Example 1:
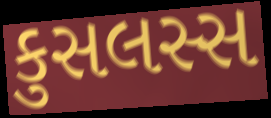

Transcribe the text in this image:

કુસલસ્સ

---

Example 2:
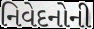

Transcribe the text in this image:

નિવેદનોની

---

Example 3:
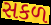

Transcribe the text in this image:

સકળ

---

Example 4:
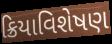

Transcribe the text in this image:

ક્રિયાવિશેષણ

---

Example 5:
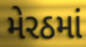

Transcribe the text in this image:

મેરઠમાં